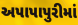
અપાપાપુરીમાં